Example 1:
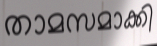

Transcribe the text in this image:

താമസമാക്കി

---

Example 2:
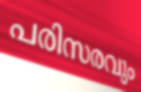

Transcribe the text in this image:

പരിസരവും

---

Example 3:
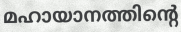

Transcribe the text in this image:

മഹായാനത്തിന്റെ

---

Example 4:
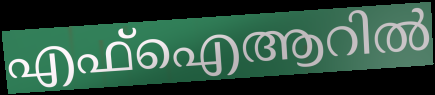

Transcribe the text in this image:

എഫ്ഐആറിൽ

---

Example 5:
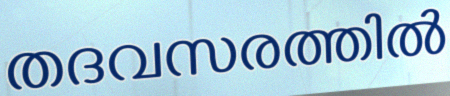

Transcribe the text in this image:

തദവസരത്തിൽ